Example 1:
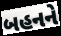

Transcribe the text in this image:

બહનને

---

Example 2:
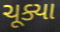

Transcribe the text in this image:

ચૂક્યા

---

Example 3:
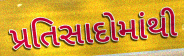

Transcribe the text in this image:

પ્રતિસાદોમાંથી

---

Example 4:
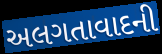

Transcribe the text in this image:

અલગતાવાદની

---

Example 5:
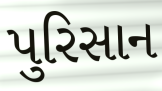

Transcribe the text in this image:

પુરિસાન